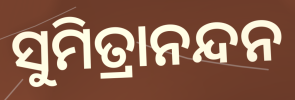
ସୁମିତ୍ରାନନ୍ଦନ